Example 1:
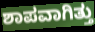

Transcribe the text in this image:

ಶಾಪವಾಗಿತ್ತು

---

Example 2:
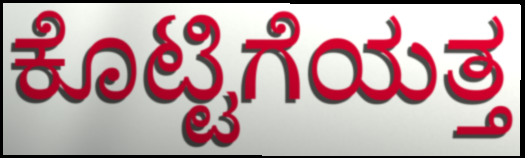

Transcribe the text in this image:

ಕೊಟ್ಟಿಗೆಯತ್ತ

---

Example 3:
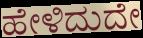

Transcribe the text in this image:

ಹೇಳಿದುದೇ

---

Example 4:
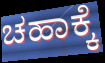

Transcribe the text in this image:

ಚಹಾಕ್ಕೆ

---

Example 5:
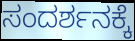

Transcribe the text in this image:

ಸಂದರ್ಶನಕ್ಕೆ